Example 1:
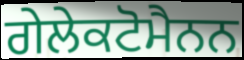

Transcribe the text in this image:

ਗੇਲੇਕਟੋਮੈਨਨ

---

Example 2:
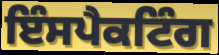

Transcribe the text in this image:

ਇੰਸਪੈਕਟਿੰਗ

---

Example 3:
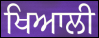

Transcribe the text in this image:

ਖਿਆਲੀ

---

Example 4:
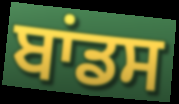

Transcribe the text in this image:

ਬਾਂਡਸ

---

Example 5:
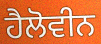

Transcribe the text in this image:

ਹੈਲੋਵੀਨ